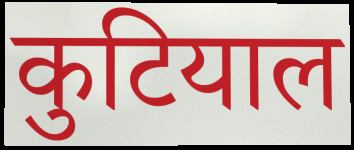
कुटियाल